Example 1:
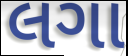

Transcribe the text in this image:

લગા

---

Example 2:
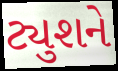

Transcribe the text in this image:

ટ્યુશને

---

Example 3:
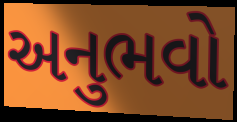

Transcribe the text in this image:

અનુભવો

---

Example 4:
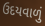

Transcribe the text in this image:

ઉદયવાળું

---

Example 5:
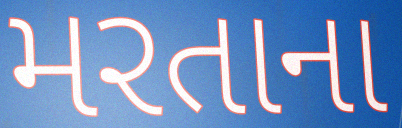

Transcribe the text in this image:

મરતાના